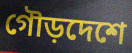
গৌড়দেশে